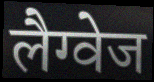
लैग्वेज